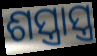
ଶସ୍ତ୍ରାସ୍ତ୍ର